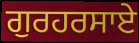
ਗੁਰਹਰਸਾਏ